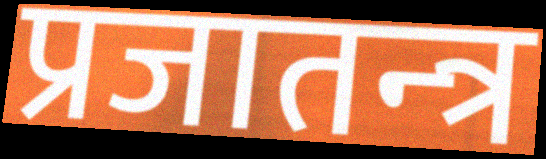
प्रजातन्त्र